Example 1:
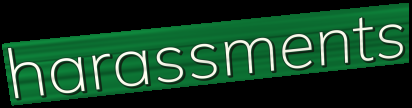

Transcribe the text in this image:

harassments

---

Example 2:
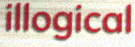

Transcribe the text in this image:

illogical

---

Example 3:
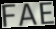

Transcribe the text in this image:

FAE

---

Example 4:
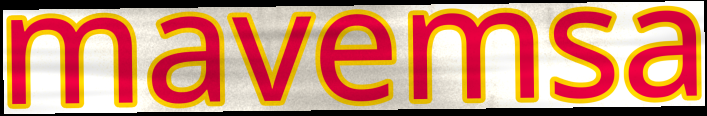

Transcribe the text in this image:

mavemsa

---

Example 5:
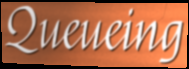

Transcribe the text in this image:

Queueing